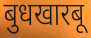
बुधखारबू